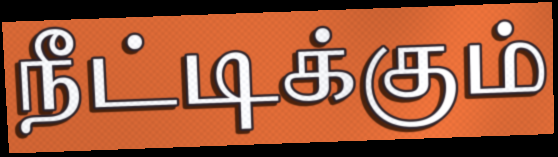
நீட்டிக்கும்